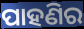
ପାହଣିର